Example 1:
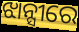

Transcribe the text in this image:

ଝାନ୍ସୀରେ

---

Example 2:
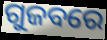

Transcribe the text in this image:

ଗୁଜବରେ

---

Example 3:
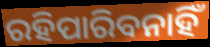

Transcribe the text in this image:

ରହିପାରିବନାହିଁ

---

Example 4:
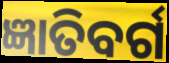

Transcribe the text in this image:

ଜ୍ଞାତିବର୍ଗ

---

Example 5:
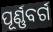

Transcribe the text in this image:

ପୂର୍ଣ୍ଣବର୍ଗ